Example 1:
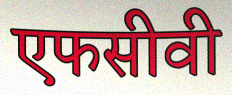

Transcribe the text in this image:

एफसीवी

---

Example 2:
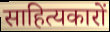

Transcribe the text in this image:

साहित्यकारों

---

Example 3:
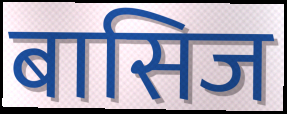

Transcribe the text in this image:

बासिज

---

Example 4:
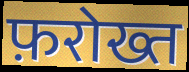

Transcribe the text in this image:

फ़रोख्त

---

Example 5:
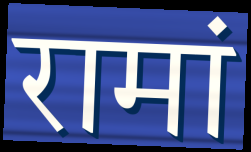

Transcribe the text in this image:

रामां